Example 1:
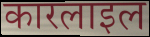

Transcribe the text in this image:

कारलाइल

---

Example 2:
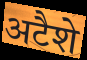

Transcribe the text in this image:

अटैशे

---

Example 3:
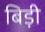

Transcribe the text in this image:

बिड़ी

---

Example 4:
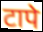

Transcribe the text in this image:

टापे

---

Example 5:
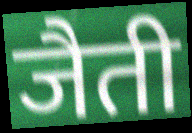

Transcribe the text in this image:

जैती